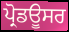
ਪ੍ਰੋਡਊਸਰ